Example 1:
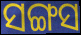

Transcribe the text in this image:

ସଙ୍ଗସ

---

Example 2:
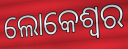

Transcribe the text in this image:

ଲୋକେଶ୍ୱର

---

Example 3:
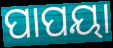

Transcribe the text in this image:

ପାପୟା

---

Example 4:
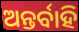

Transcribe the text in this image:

ଅନ୍ତର୍ବାହି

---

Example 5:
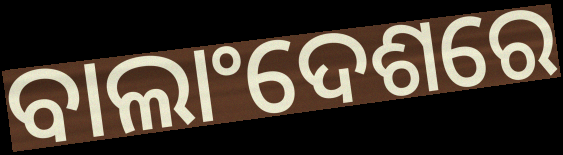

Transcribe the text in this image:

ବାଲାଂଦେଶରେ